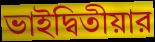
ভাইদ্বিতীয়ার